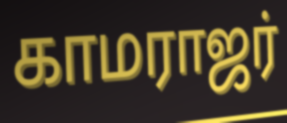
காமராஜர்